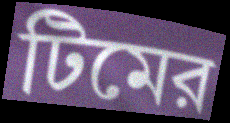
টিমের